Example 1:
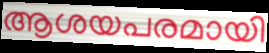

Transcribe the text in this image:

ആശയപരമായി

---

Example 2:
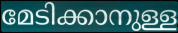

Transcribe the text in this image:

മേടിക്കാനുള്ള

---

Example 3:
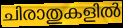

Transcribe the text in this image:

ചിരാതുകളിൽ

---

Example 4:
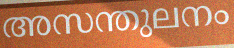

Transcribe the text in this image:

അസന്തുലനം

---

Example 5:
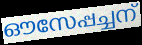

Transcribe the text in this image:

ഔസേപ്പച്ചന്